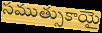
సముత్సుకాయై